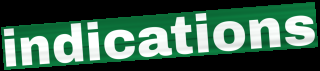
indications